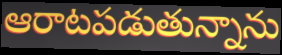
ఆరాటపడుతున్నాను